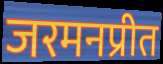
जरमनप्रीत